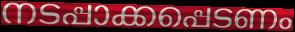
നടപ്പാക്കപ്പെടണം